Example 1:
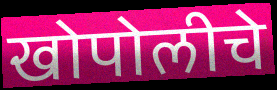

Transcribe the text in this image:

खोपोलीचे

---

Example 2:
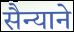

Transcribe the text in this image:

सैन्याने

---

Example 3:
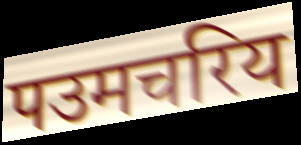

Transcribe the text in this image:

पउमचरिय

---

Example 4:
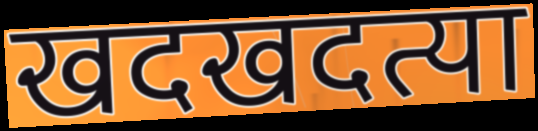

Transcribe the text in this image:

खदखदत्या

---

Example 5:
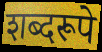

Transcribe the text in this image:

शब्दरूपे